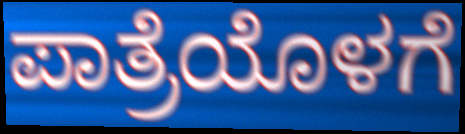
ಪಾತ್ರೆಯೊಳಗೆ